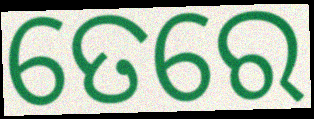
ତେରେ